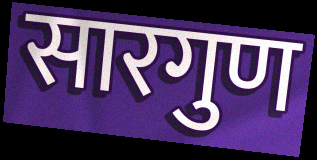
सारगुण